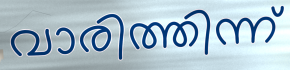
വാരിത്തിന്ന്